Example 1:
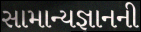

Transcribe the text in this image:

સામાન્યજ્ઞાનની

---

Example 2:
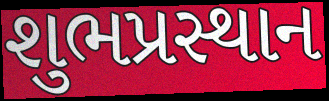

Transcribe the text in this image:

શુભપ્રસ્થાન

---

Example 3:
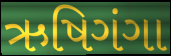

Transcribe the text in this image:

ઋષિગંગા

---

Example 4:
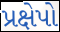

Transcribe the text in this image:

પ્રક્ષેપો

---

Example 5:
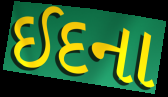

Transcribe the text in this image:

ઈદના